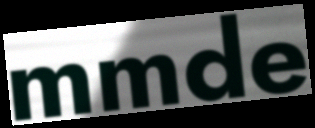
mmde